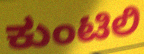
ಕುಂಟಿಲಿ